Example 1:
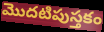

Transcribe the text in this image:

మొదటిపుస్తకం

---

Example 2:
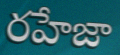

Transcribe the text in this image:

రహేజా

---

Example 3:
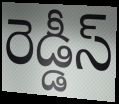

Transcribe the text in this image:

రెడ్డీస్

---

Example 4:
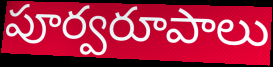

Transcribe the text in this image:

పూర్వరూపాలు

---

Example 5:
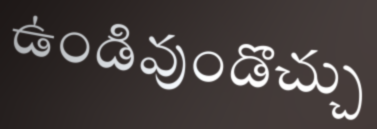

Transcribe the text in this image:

ఉండివుండొచ్చు